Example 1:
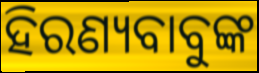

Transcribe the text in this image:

ହିରଣ୍ୟବାବୁଙ୍କ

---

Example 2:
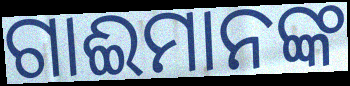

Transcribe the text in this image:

ଗାଈମାନଙ୍କ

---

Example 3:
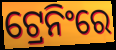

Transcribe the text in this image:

ଟ୍ରେନିଂରେ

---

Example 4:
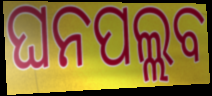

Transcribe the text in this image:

ଘନପଲ୍ଲବ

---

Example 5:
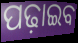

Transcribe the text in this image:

ପଢ଼ାଇବ